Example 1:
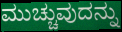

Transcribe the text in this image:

ಮುಚ್ಚುವುದನ್ನು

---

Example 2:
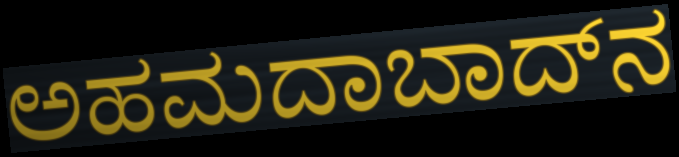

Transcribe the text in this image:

ಅಹಮದಾಬಾದ್‌ನ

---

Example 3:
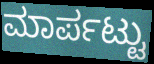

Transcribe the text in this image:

ಮಾರ್ಪಟ್ಟು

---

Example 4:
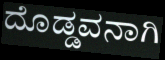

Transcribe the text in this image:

ದೊಡ್ಡವನಾಗಿ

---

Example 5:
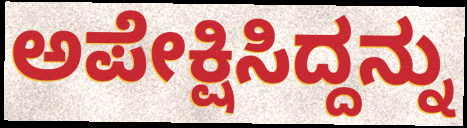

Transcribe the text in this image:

ಅಪೇಕ್ಷಿಸಿದ್ದನ್ನು